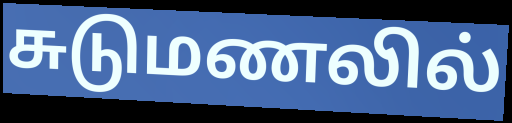
சுடுமணலில்